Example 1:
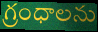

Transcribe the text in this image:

గ్రంధాలను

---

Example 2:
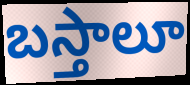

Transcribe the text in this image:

బస్తాలూ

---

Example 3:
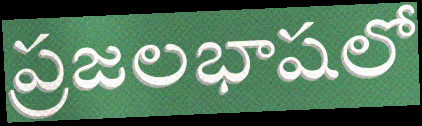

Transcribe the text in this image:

ప్రజలభాషలో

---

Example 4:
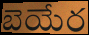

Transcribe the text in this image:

బెయేర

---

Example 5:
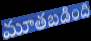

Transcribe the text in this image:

మూతబడింది